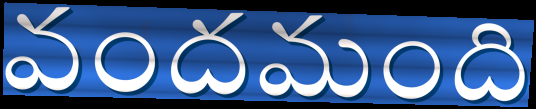
వందమంది